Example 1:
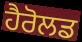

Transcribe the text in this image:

ਹੈਰੋਲਡ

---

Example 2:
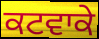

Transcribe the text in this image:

ਕਟਵਾਕੇ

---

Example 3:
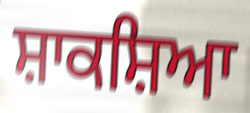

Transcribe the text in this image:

ਸ਼ਾਕਸ਼ਿਆ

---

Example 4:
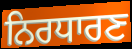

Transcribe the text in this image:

ਨਿਰਧਾਰਣ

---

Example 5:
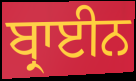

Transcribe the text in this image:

ਬ੍ਰਾਈਨ